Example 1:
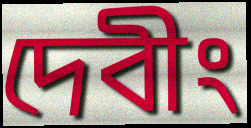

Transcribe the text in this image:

দেবীং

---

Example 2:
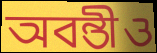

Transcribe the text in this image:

অবন্তীও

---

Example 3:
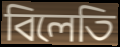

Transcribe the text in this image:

বিলেতি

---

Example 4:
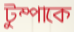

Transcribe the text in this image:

টুম্পাকে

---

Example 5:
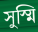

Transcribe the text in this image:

সুস্মি